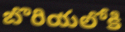
బొరియలోకి